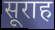
सूराह